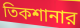
তিকশানার